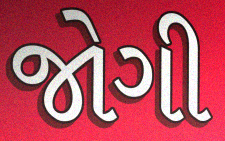
જોગી